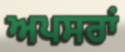
ਅਪਸਰਾਂ